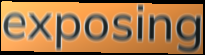
exposing